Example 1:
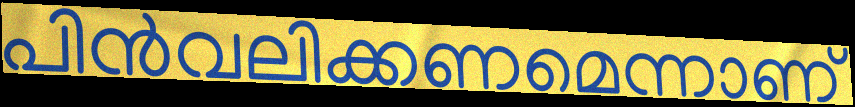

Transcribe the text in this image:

പിൻവലിക്കണമെന്നാണ്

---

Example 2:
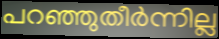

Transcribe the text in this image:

പറഞ്ഞുതീർന്നില്ല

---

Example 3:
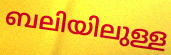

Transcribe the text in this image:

ബലിയിലുള്ള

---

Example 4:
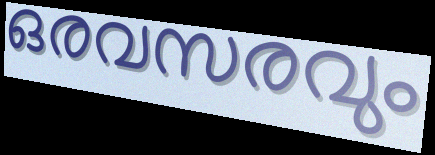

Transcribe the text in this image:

ഒരവസരവും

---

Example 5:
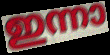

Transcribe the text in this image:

ഇന്നാ